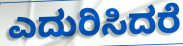
ಎದುರಿಸಿದರೆ